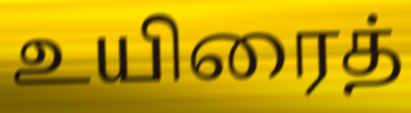
உயிரைத்